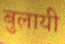
बुलायी